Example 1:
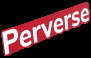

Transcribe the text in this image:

Perverse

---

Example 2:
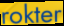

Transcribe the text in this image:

rokter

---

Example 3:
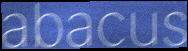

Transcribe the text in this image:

abacus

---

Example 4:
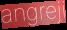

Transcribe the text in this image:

angreji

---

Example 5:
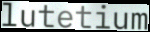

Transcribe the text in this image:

lutetium